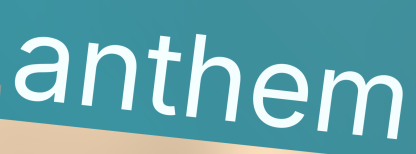
anthem